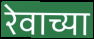
रेवाच्या